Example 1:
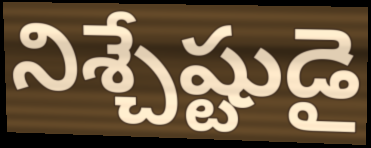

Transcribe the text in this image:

నిశ్చేష్టుడై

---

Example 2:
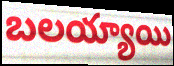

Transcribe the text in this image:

బలయ్యాయి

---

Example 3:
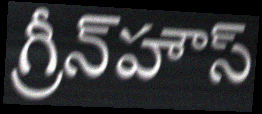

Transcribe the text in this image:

గ్రీన్‌హౌస్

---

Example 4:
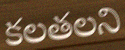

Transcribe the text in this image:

కలతలని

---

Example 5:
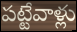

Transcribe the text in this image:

పట్టేవాళ్లు